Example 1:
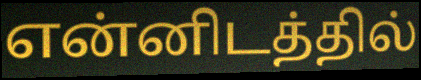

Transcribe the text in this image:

என்னிடத்தில்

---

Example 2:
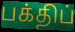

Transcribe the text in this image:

பக்திப்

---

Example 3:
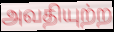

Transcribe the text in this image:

அவதியுற்ற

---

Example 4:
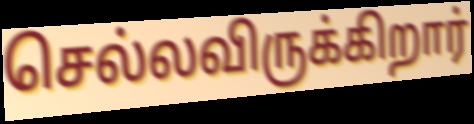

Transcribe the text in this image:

செல்லவிருக்கிறார்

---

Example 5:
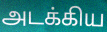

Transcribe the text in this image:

அடக்கிய